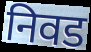
निवड